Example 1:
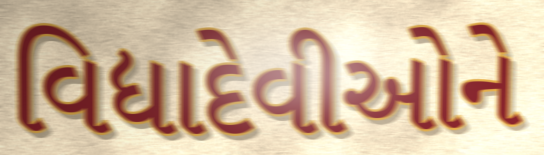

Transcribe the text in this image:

વિદ્યાદેવીઓને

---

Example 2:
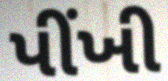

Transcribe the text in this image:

પીંખી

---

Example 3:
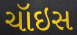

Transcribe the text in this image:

ચૉઇસ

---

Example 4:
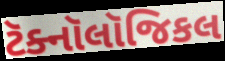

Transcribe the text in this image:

ટૅક્નૉલૉજિકલ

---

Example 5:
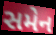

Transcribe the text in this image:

સમેન